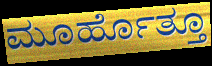
ಮೂರ್ಹೊತ್ತೂ